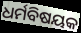
ଧର୍ମବିଷୟକ